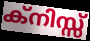
ക്നിസ്സ്